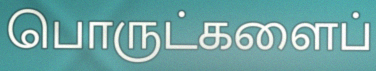
பொருட்களைப்